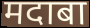
मदाबा